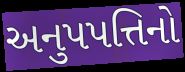
અનુપપત્તિનો